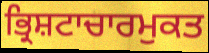
ਭ੍ਰਿਸ਼ਟਾਚਾਰਮੁਕਤ